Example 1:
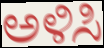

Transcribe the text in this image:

ಅಳಿಸಿ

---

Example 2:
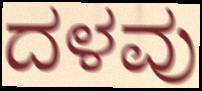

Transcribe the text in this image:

ದಳವು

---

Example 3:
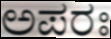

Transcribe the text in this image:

ಅಪರಃ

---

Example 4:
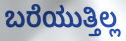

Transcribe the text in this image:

ಬರೆಯುತ್ತಿಲ್ಲ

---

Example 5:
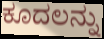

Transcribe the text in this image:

ಕೂದಲನ್ನು